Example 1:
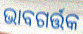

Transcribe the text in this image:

ଭାବଗର୍ତ୍ତକ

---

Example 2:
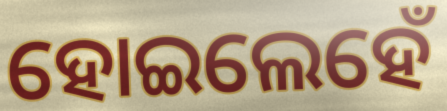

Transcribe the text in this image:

ହୋଇଲେହେଁ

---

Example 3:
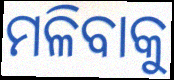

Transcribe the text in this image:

ମଳିବାକୁ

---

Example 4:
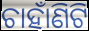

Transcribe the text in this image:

ଚାହାଁଣିଟି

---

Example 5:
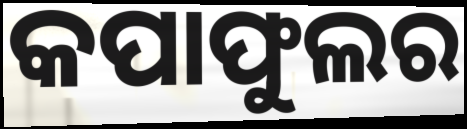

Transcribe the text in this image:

କପାଫୁଲର